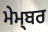
ਮੇਮ੍ਬਰ